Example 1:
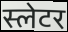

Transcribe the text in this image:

स्लेटर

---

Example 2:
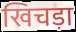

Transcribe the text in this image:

खिचड़ा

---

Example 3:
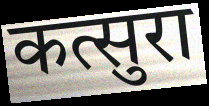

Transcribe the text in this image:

कत्सुरा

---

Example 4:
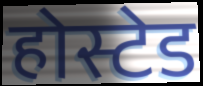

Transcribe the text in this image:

होस्टेड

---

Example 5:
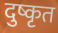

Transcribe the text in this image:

दुष्कृत